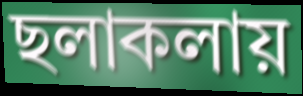
ছলাকলায়